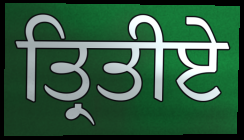
ਤ੍ਰਿਤੀਏ